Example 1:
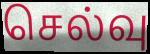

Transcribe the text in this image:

செல்வு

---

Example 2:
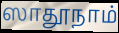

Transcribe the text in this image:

ஸாதூநாம்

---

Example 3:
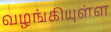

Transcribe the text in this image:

வழங்கியுள்ள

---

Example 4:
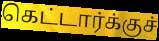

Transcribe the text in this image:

கெட்டார்க்குச்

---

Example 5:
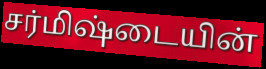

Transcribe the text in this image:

சர்மிஷ்டையின்